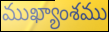
ముఖ్యాంశము